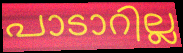
പാടാറില്ല